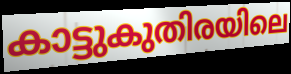
കാട്ടുകുതിരയിലെ